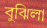
বুঝিলা